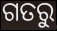
ଗତରୁ